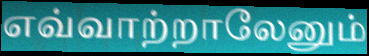
எவ்வாற்றாலேனும்